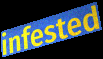
infested